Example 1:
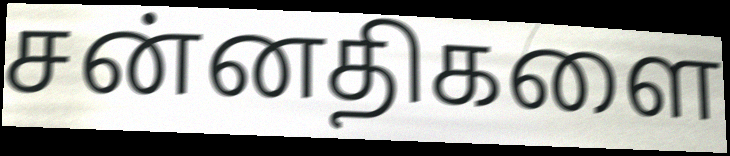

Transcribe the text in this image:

சன்னதிகளை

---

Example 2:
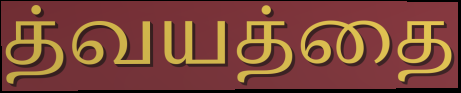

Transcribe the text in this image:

த்வயத்தை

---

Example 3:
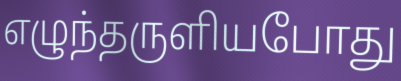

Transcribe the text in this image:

எழுந்தருளியபோது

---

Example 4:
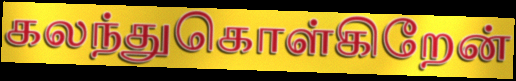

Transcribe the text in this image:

கலந்துகொள்கிறேன்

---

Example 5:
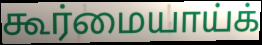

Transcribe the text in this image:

கூர்மையாய்க்